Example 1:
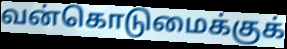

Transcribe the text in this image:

வன்கொடுமைக்குக்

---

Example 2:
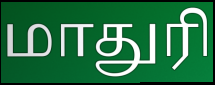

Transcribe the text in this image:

மாதுரி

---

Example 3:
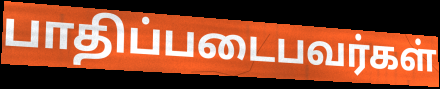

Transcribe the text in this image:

பாதிப்படைபவர்கள்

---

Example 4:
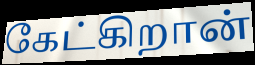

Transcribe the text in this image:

கேட்கிறான்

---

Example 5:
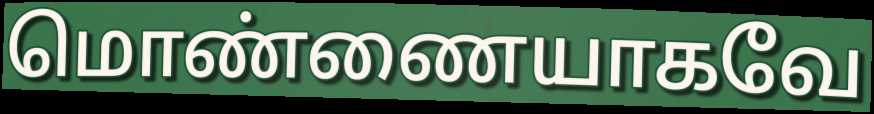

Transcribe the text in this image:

மொண்ணையாகவே